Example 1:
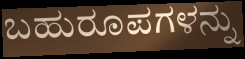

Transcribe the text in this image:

ಬಹುರೂಪಗಳನ್ನು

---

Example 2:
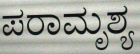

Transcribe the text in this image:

ಪರಾಮೃಶ್ಯ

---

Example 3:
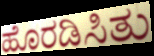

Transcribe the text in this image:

ಹೊರಡಿಸಿತು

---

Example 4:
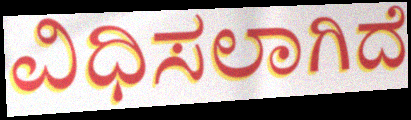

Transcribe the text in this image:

ವಿಧಿಸಲಾಗಿದೆ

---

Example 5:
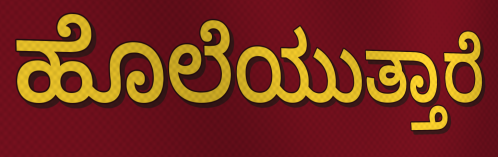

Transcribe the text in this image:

ಹೊಲೆಯುತ್ತಾರೆ